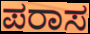
ಪರಾಸ